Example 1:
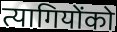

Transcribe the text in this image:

त्यागियोंको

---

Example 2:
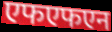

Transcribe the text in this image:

एफएफएन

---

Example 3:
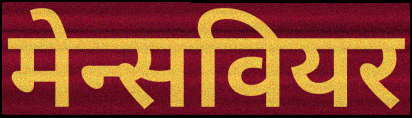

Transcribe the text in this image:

मेन्सवियर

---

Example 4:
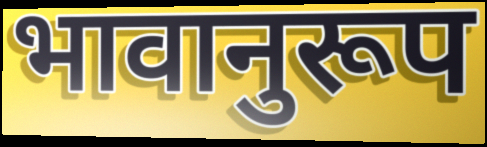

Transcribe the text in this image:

भावानुरूप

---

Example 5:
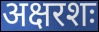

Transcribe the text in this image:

अक्षरशः